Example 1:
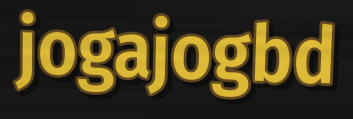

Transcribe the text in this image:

jogajogbd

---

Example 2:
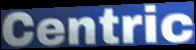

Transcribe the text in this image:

Centric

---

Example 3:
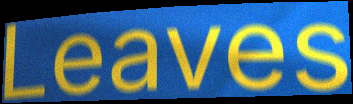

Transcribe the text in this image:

Leaves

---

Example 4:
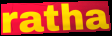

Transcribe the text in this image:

ratha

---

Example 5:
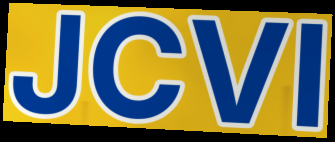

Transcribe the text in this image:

JCVI